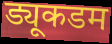
ड्यूकडम